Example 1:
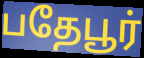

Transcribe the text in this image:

பதேபூர்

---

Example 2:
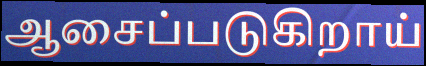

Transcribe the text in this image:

ஆசைப்படுகிறாய்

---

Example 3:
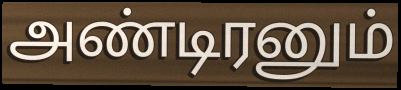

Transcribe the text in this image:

அண்டிரனும்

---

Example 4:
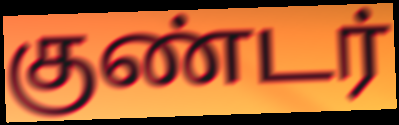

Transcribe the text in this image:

குண்டர்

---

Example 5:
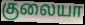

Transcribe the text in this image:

குலையா